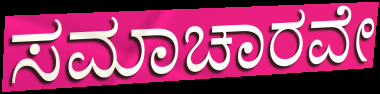
ಸಮಾಚಾರವೇ